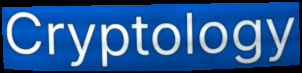
Cryptology